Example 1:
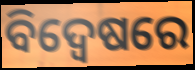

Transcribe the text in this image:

ବିଦ୍ଵେଷରେ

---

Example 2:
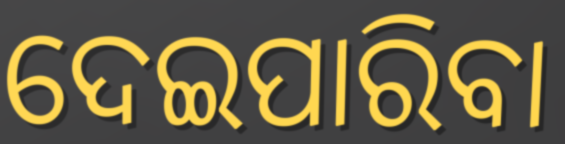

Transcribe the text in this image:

ଦେଇପାରିବା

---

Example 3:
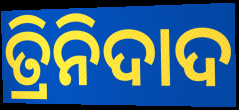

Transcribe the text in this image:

ତ୍ରିନିଦାଦ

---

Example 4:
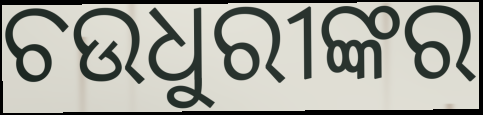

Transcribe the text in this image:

ଚଉଧୁରୀଙ୍କର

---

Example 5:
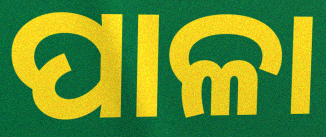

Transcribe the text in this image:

ପାଳା